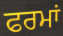
ਫਰਮਾਂ